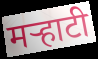
मर्‍हाटी